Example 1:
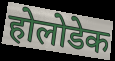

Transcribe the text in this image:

होलोडेक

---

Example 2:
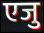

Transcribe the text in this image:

एजु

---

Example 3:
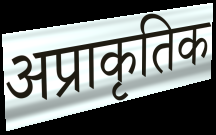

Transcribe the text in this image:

अप्राकृतिक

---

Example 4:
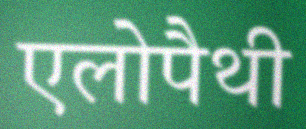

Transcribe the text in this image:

एलोपैथी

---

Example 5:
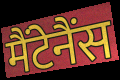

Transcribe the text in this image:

मैंटेनैंस